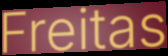
Freitas